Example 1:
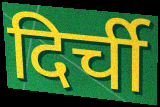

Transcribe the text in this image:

दिर्ची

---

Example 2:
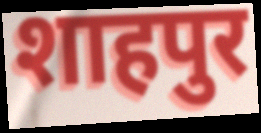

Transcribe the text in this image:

शाहपुर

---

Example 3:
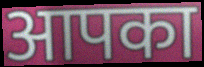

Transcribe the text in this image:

आपका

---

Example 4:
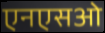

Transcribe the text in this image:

एनएसओ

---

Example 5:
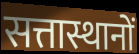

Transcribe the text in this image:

सत्तास्थानों